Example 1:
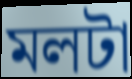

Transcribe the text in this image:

মলটা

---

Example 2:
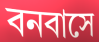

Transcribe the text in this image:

বনবাসে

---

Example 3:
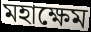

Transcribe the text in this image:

মহাক্ষেম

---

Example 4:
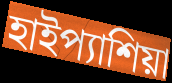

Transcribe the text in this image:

হাইপ্যাশিয়া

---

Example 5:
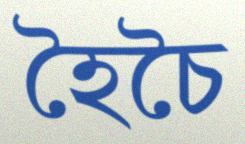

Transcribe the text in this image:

হৈচৈ